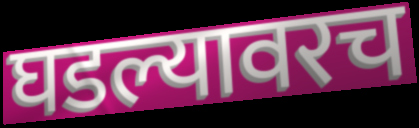
घडल्यावरच